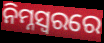
ନିମ୍ନସ୍ଵରରେ